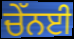
ਚੇੱਨਈ